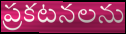
ప్రకటనలను